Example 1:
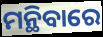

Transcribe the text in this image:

ମନ୍ଥିବାରେ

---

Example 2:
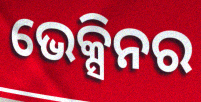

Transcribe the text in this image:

ଭେକ୍ସିନର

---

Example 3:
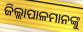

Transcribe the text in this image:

ଜିଲ୍ଲାପାଳମାନଙ୍କୁ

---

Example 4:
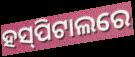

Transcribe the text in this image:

ହସ୍‌ପିଟାଲରେ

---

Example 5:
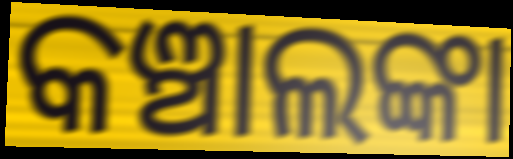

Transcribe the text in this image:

କଞ୍ଚାଲଙ୍କା